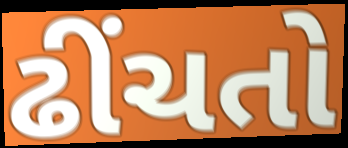
ઢીંચતો